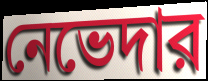
নেভেদার